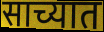
साच्यात